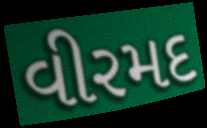
વીરમદ